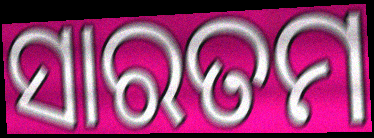
ସାରତମ